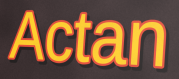
Actan